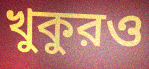
খুকুরও